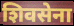
शिवसेना